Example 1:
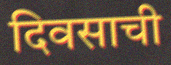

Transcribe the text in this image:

दिवसाची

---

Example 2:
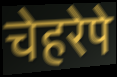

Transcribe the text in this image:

चेहरेपे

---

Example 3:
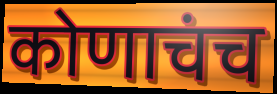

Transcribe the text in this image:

कोणाचंच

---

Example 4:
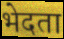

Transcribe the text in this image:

भेदता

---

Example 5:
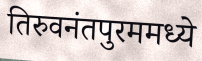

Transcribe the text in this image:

तिरुवनंतपुरममध्ये